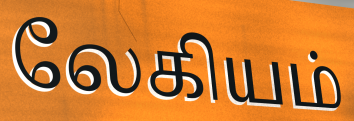
லேகியம்